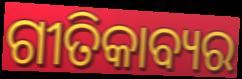
ଗୀତିକାବ୍ୟର